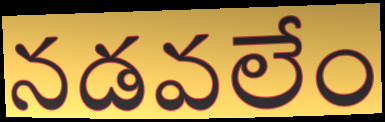
నడవలేం